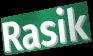
Rasik